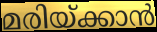
മരിയ്ക്കാൻ